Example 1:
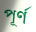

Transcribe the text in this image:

পূর্ণ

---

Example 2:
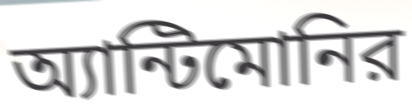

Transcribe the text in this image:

অ্যান্টিমোনির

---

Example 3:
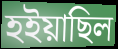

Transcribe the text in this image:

হইয়াছিল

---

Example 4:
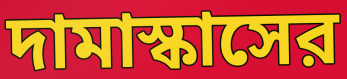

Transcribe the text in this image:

দামাস্কাসের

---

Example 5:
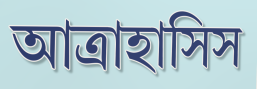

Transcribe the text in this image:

আত্রাহাসিস